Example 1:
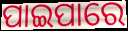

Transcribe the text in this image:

ପାଇପାରେ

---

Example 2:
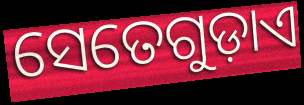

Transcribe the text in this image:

ସେତେଗୁଡ଼ାଏ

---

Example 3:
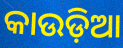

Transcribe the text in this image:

କାଉଡ଼ିଆ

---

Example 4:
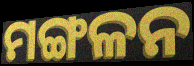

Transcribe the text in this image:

ମଙ୍ଗଳନ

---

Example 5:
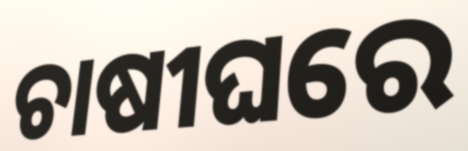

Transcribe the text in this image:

ଚାଷୀଘରେ